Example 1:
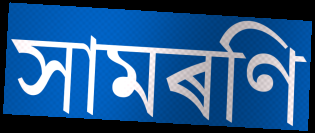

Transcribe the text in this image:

সামৰণি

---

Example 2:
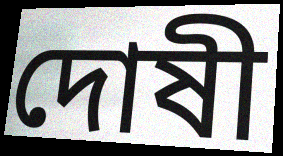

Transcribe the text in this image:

দোষী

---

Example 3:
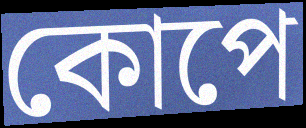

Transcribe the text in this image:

কোপে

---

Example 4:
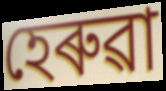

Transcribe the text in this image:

হেৰুৱা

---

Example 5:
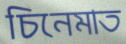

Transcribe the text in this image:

চিনেমাত